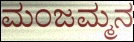
ಮಂಜಮ್ಮನ